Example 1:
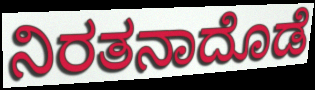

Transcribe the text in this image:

ನಿರತನಾದೊಡೆ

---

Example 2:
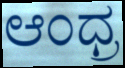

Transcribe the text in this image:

ಆಂಧ್ರ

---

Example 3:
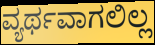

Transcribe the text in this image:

ವ್ಯರ್ಥವಾಗಲಿಲ್ಲ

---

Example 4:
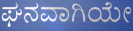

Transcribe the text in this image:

ಘನವಾಗಿಯೇ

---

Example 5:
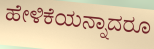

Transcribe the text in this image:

ಹೇಳಿಕೆಯನ್ನಾದರೂ